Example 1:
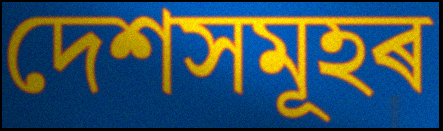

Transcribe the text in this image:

দেশসমূহৰ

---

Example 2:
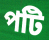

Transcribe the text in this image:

পটি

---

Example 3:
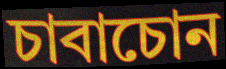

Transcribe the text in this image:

চাবাচোন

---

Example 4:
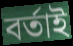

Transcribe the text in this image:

বৰ্তাই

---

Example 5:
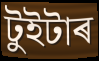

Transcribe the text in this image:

টুইটাৰ